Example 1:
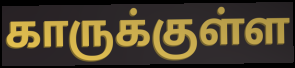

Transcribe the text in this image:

காருக்குள்ள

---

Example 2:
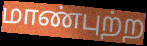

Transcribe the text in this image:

மாண்புற்ற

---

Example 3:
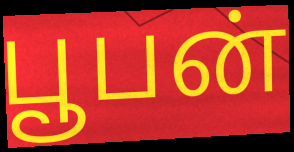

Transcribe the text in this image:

பூபன்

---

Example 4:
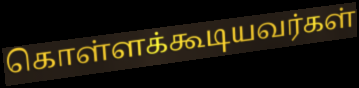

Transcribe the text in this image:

கொள்ளக்கூடியவர்கள்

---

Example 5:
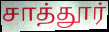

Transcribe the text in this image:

சாத்தூர்